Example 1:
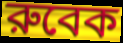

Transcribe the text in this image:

রুবেক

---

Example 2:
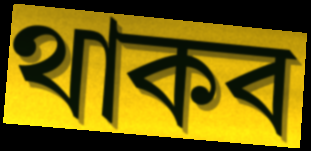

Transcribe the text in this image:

থাকব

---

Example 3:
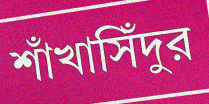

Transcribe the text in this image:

শাঁখাসিঁদুর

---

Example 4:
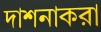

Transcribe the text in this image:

দাশনাকরা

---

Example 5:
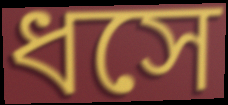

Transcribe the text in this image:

ধসে